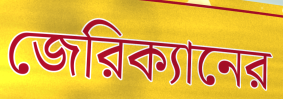
জেরিক্যানের